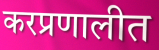
करप्रणालीत